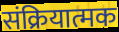
संक्रियात्मक